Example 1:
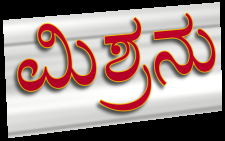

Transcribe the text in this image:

ಮಿಶ್ರನು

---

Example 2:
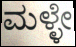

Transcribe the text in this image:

ಮಳ್ಳೇ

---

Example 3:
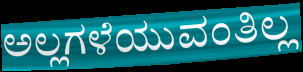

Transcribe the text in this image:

ಅಲ್ಲಗಳೆಯುವಂತಿಲ್ಲ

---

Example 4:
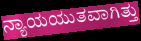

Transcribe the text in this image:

ನ್ಯಾಯಯುತವಾಗಿತ್ತು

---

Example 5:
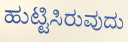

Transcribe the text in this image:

ಹುಟ್ಟಿಸಿರುವುದು